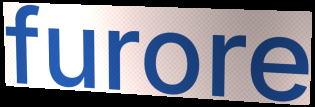
furore